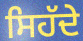
ਸਿਹੱਦੇ